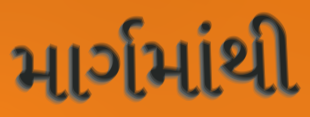
માર્ગમાંથી